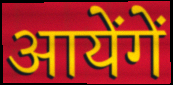
आयेंगें